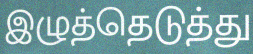
இழுத்தெடுத்து